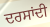
ਦਰਸਾਂਦੀ